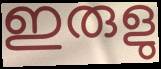
ഇരുളു